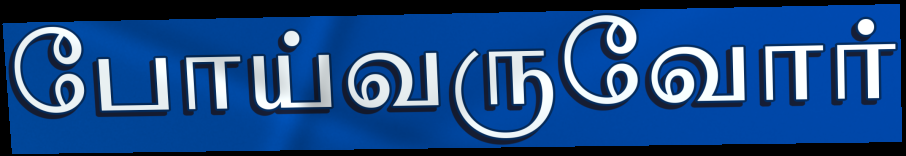
போய்வருவோர்